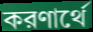
করণার্থে